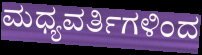
ಮಧ್ಯವರ್ತಿಗಳಿಂದ